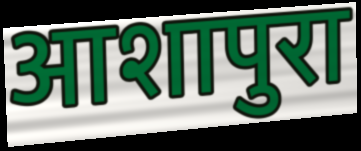
आशापुरा